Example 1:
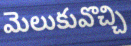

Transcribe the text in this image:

మెలుకువొచ్చి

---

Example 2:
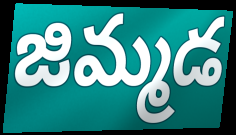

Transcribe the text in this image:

జిమ్మడ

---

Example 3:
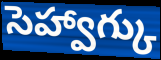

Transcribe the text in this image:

సెహ్వాగ్కు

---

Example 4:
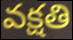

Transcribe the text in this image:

వక్షతి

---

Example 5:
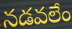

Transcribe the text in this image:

నడవలేం